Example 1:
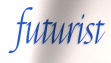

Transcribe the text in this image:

futurist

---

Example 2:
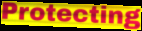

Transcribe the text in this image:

Protecting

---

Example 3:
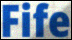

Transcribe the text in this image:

Fife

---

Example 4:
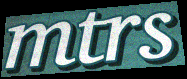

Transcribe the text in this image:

mtrs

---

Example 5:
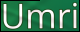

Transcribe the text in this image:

Umri